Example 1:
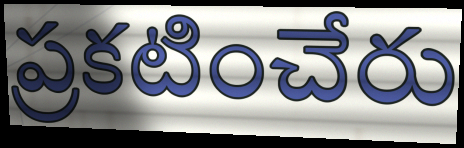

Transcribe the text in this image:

ప్రకటించేరు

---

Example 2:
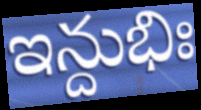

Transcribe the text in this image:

ఇన్దుభిః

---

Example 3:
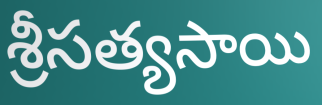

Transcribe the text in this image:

శ్రీసత్యసాయి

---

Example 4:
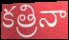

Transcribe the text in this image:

కత్రినా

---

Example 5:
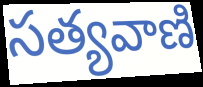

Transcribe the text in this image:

సత్యవాణి